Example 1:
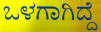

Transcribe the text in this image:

ಒಳಗಾಗಿದ್ದೆ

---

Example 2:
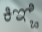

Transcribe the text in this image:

ಕಿಞ್ಚಿ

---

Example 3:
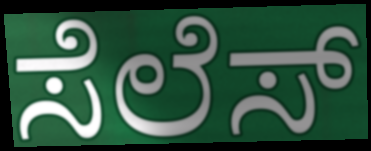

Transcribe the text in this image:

ಸೆಲೆಸ್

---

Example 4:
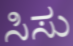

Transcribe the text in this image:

ಸಿಸು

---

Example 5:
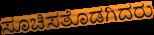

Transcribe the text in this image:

ಸೂಚಿಸತೊಡಗಿದರು